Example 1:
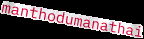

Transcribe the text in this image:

manthodumanathai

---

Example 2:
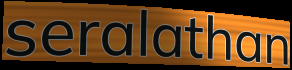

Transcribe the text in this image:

seralathan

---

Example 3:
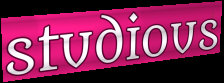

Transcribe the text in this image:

studious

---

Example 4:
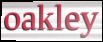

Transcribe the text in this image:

oakley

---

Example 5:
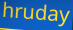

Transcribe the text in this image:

hruday